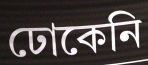
ঢোকেনি